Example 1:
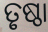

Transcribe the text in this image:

ତୃଷ୍ଠା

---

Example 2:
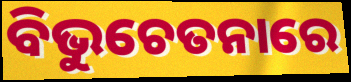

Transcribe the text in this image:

ବିଭୁଚେତନାରେ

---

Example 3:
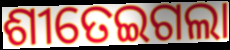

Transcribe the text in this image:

ଶୀତେଇଗଲା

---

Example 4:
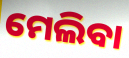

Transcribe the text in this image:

ମେଲିବା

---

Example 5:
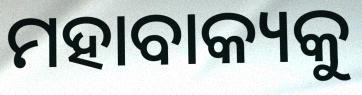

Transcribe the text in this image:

ମହାବାକ୍ୟକୁ